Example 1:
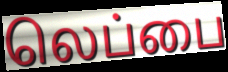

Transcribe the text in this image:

லெப்பை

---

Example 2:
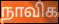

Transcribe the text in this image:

நாவிக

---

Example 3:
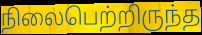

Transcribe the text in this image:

நிலைபெற்றிருந்த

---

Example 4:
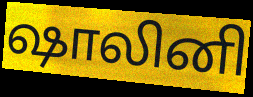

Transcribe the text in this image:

ஷாலினி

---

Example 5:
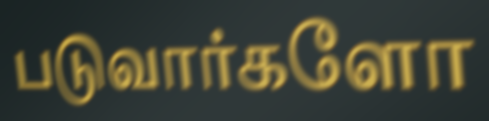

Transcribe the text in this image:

படுவார்களோ